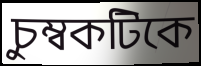
চুম্বকটিকে